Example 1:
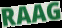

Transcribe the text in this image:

RAAG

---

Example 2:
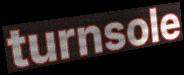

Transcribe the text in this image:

turnsole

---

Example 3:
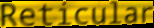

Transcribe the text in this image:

Reticular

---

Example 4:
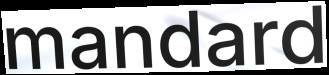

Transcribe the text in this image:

mandard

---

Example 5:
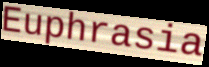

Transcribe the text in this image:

Euphrasia